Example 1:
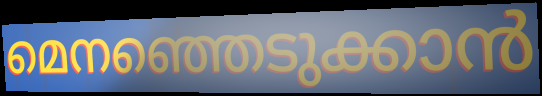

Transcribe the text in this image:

മെനഞ്ഞെടുക്കാൻ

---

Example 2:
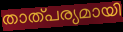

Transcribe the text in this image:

താത്പര്യമായി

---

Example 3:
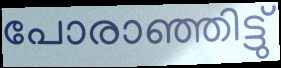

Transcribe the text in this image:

പോരാഞ്ഞിട്ടു്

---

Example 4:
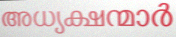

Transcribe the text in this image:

അധ്യക്ഷന്മാർ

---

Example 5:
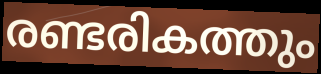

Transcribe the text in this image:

രണ്ടരികത്തും